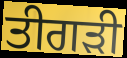
ਤੀਗੜੀ